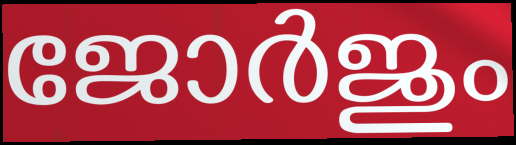
ജോർജും